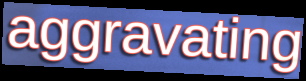
aggravating